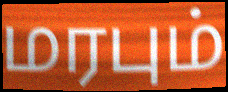
மரபும்